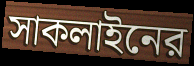
সাকলাইনের